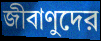
জীবাণুদের